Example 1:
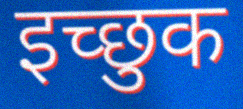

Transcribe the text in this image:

इच्‍छुक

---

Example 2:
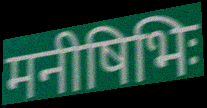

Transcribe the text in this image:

मनीषिभिः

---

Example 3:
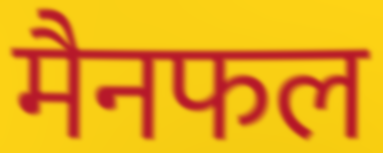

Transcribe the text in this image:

मैनफल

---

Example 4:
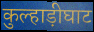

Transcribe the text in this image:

कुल्हाड़ीघाट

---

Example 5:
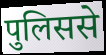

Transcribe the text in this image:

पुलिससे